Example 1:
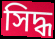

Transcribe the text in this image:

সিদ্ধ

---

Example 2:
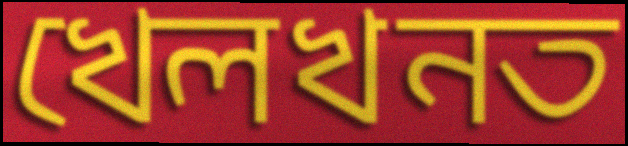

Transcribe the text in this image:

খেলখনত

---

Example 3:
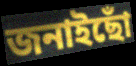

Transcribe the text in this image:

জনাইছোঁ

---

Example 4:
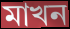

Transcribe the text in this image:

মাখন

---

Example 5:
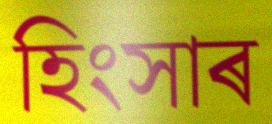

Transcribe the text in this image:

হিংসাৰ